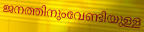
ജനത്തിനുംവേണ്ടിയുള്ള